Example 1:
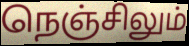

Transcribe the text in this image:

நெஞ்சிலும்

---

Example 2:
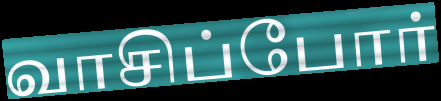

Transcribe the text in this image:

வாசிப்போர்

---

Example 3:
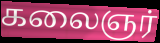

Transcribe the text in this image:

கலைஞர்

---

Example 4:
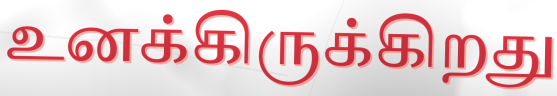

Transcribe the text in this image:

உனக்கிருக்கிறது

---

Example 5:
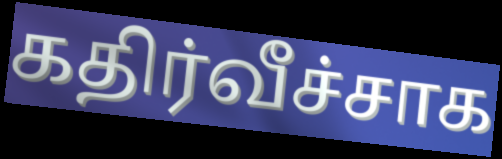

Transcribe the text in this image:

கதிர்வீச்சாக